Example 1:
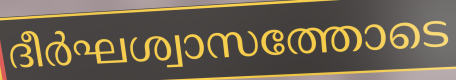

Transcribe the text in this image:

ദീർഘശ്വാസത്തോടെ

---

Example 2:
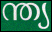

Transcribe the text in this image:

ന്ത്യ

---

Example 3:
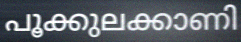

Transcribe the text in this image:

പൂക്കുലക്കാണി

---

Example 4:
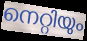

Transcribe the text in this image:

നെറ്റിയും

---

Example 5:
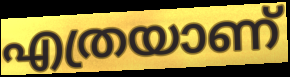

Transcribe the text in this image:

എത്രയാണ്